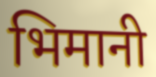
भिमानी